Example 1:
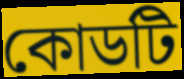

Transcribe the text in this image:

কোডটি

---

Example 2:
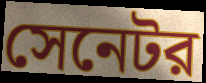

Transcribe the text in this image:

সেনেটর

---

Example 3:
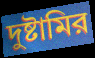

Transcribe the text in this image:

দুষ্টামির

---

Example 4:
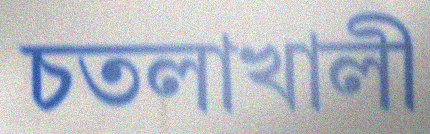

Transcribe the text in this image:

চতলাখালী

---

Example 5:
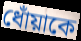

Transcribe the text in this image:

ধোঁয়াকে